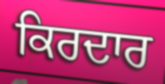
ਕਿਰਦਾਰ